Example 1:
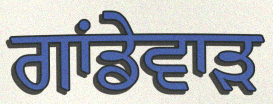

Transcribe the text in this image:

ਗਾਂਡੇਵਾੜ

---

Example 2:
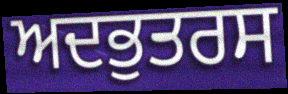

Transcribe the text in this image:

ਅਦਭੁਤਰਸ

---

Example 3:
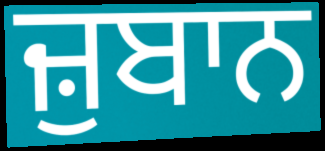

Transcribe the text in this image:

ਜ਼ੁਬਾਨ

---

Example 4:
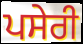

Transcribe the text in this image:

ਪਸੇਰੀ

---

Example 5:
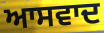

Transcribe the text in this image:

ਆਸਵਾਦ